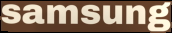
samsung